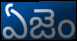
ఏజెం